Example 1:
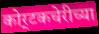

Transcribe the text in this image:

कोर्टकचेरीच्या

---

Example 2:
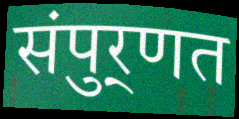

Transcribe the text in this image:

संपुर्णत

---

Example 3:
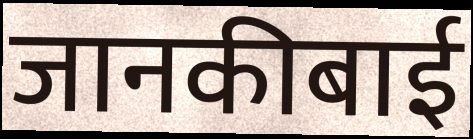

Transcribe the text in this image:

जानकीबाई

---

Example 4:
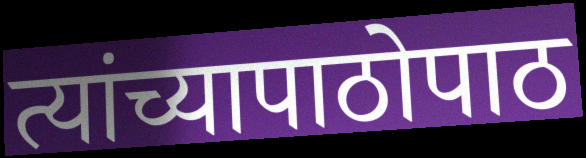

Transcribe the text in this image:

त्यांच्यापाठोपाठ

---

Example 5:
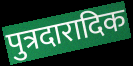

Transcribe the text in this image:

पुत्रदारादिक